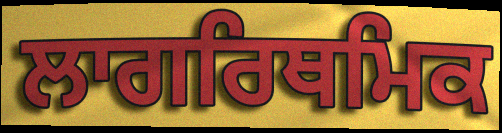
ਲਾਗਰਿਥਮਿਕ